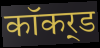
कॉकर्ड